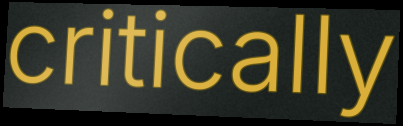
critically